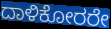
ದಾಳಿಕೋರರೇ